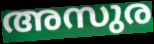
അസുര